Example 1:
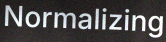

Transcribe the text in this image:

Normalizing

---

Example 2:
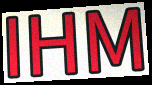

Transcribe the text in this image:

IHM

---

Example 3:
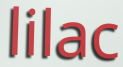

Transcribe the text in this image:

lilac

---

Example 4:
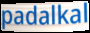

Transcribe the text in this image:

padalkal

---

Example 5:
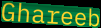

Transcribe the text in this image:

Ghareeb